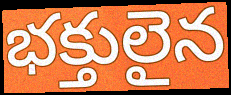
భక్తులైన